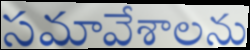
సమావేశాలను